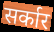
सर्कार